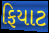
ફિયાટ